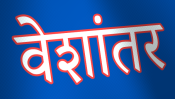
वेशांतर